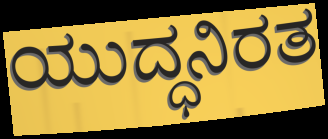
ಯುದ್ಧನಿರತ